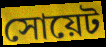
সোয়েট